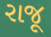
રાજૂ